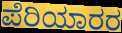
ಪೆರಿಯಾರರ